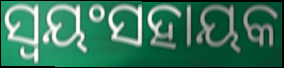
ସ୍ଵୟଂସହାୟକ